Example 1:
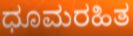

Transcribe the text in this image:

ಧೂಮರಹಿತ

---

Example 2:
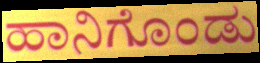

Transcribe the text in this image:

ಹಾನಿಗೊಂಡು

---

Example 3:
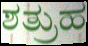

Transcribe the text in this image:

ಶತ್ರುಹ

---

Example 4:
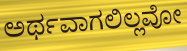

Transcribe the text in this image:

ಅರ್ಥವಾಗಲಿಲ್ಲವೋ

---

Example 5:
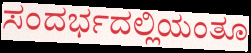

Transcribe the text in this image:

ಸಂದರ್ಭದಲ್ಲಿಯಂತೂ